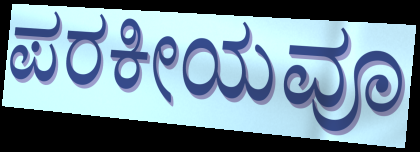
ಪರಕೀಯವೂ